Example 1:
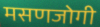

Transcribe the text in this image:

मसणजोगी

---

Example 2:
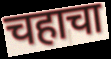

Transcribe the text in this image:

चहाचा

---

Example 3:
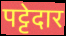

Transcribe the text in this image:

पट्टेदार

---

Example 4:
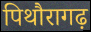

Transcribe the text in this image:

पिथौरागढ़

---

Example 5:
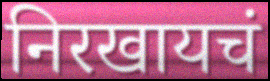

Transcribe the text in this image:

निरखायचं